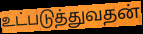
உட்படுத்துவதன்